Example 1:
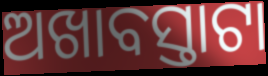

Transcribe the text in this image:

ଅଖାବସ୍ତାଟା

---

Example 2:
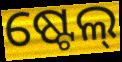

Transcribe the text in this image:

ଷ୍ଟେଲ୍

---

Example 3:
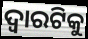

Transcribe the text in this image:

ଦ୍ଵାରଟିକୁ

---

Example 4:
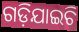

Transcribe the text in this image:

ଗଡ଼ିଯାଇଚି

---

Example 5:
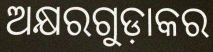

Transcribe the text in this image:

ଅକ୍ଷରଗୁଡ଼ାକର